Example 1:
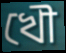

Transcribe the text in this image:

খৌ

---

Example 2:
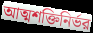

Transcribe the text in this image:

আত্মশক্তিনির্ভর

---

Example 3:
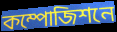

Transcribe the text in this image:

কম্পোজিশনে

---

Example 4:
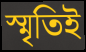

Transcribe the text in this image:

স্মৃতিই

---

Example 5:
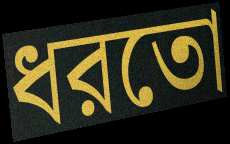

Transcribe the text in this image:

ধরতো